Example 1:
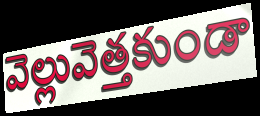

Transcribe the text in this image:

వెల్లువెత్తకుండా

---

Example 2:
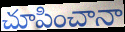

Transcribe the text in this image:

చూపించానా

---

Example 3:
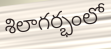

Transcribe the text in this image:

శిలాగర్భంలో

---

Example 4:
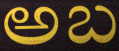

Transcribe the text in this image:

అబ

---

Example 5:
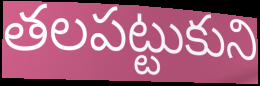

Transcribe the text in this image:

తలపట్టుకుని